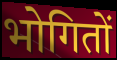
भोगितों